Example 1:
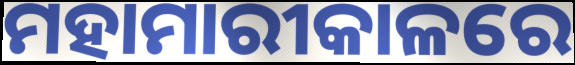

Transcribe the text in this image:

ମହାମାରୀକାଳରେ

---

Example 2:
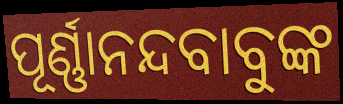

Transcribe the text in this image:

ପୂର୍ଣ୍ଣାନନ୍ଦବାବୁଙ୍କ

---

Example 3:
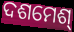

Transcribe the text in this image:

ଦଶମେଶ୍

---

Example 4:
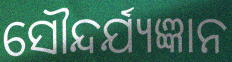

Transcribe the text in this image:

ସୌନ୍ଦର୍ଯ୍ୟଜ୍ଞାନ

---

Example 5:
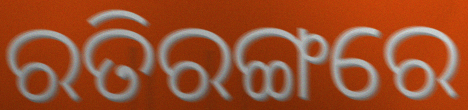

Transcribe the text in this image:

ରତିରଙ୍ଗରେ